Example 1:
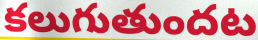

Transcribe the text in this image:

కలుగుతుందట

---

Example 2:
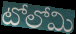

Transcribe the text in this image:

టోలోమి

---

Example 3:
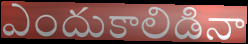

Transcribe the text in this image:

ఎందుకాలిడినా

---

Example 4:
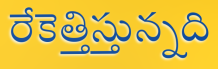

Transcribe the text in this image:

రేకెత్తిస్తున్నది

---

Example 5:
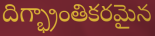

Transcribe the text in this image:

దిగ్భ్రాంతికరమైన